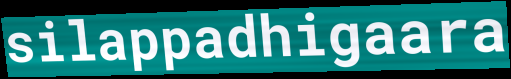
silappadhigaara